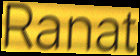
Ranat